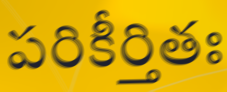
పరికీర్తితః